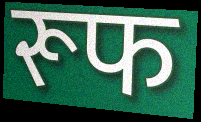
रूफ